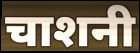
चाशनी